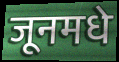
जूनमधे